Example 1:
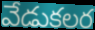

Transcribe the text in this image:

వేడుకలర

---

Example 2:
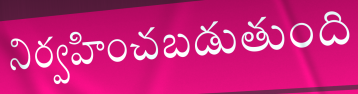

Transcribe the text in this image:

నిర్వహించబడుతుంది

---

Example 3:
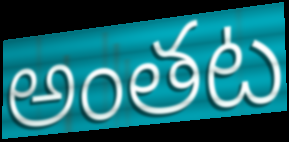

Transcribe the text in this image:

అంతట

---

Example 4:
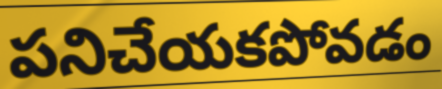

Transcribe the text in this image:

పనిచేయకపోవడం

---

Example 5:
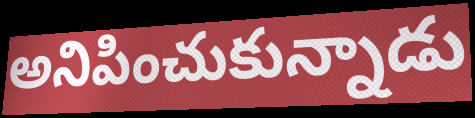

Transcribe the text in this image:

అనిపించుకున్నాడు